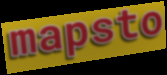
mapsto